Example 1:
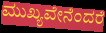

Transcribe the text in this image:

ಮುಖ್ಯವೇನೆಂದರೆ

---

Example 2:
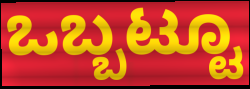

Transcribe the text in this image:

ಒಬ್ಬಟ್ಟೂ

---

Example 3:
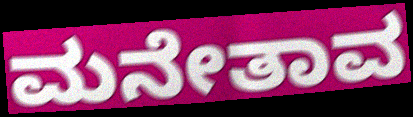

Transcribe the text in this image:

ಮನೇತಾವ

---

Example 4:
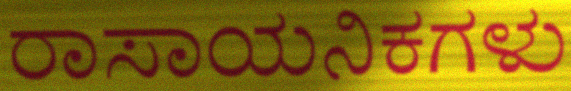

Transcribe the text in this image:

ರಾಸಾಯನಿಕಗಳು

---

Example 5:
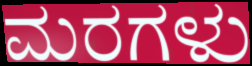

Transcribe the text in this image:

ಮರಗಳು